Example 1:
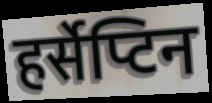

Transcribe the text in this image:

हर्सेप्टिन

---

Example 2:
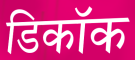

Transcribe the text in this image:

डिकॉक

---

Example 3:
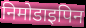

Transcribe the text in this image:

निमोडाइपिन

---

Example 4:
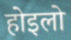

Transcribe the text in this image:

होइलो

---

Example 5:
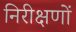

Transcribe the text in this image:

निरीक्षणों